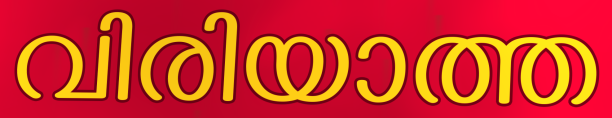
വിരിയാത്ത